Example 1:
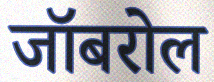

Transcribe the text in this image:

जॉबरोल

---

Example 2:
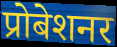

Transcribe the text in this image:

प्रोबेशनर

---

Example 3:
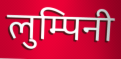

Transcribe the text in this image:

लुम्पिनी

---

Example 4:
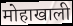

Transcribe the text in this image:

मोहाखाली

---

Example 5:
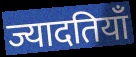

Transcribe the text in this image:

ज्यादतियाँ